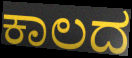
ಕಾಲದ